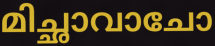
മിച്ഛാവാചോ